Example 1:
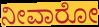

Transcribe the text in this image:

ನೀವಾರೋ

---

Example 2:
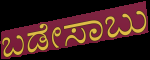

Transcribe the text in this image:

ಬಡೇಸಾಬು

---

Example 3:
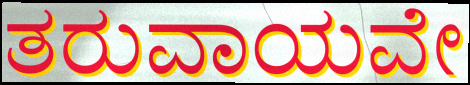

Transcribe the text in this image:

ತರುವಾಯವೇ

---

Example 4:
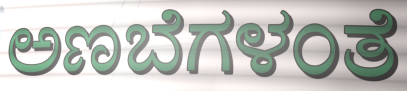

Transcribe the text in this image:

ಅಣಬೆಗಳಂತೆ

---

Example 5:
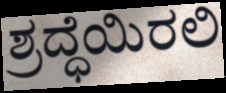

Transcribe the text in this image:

ಶ್ರದ್ಧೆಯಿರಲಿ